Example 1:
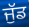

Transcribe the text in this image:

ਜੁੱਡ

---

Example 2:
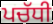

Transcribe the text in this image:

ਪਚੱਧੀ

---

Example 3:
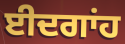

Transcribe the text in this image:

ਈਦਗਾਂਹ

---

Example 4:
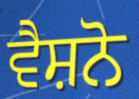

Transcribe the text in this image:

ਵੈਸ਼ਨੋ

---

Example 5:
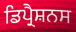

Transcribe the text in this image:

ਡਿਪ੍ਰੈਸ਼ਨਸ